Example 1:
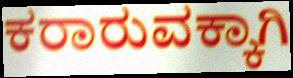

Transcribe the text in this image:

ಕರಾರುವಕ್ಕಾಗಿ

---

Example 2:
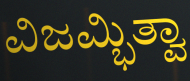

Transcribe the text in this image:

ವಿಜಮ್ಭಿತ್ವಾ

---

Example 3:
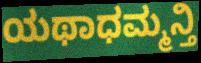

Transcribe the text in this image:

ಯಥಾಧಮ್ಮನ್ತಿ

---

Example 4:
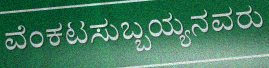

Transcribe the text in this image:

ವೆಂಕಟಸುಬ್ಬಯ್ಯನವರು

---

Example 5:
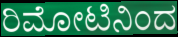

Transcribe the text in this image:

ರಿಮೋಟಿನಿಂದ